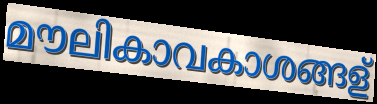
മൗലികാവകാശങ്ങള്